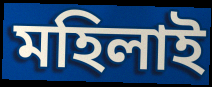
মহিলাই